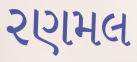
રણમલ